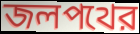
জলপথের